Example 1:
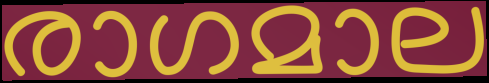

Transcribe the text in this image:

രാഗമാല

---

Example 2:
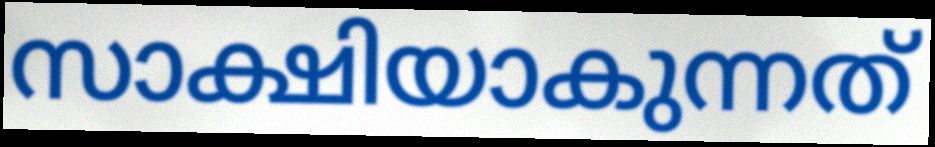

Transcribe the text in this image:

സാക്ഷിയാകുന്നത്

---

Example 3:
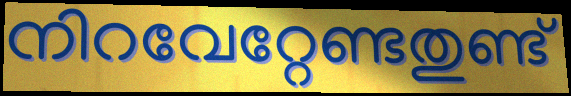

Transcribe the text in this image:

നിറവേറ്റേണ്ടതുണ്ട്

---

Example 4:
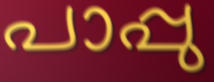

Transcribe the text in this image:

പാപ്പു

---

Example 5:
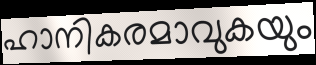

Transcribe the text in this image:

ഹാനികരമാവുകയും